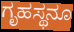
ಗೃಹಸ್ಥನೂ